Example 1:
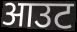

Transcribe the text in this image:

आउट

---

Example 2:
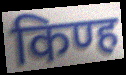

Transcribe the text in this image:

किण्ह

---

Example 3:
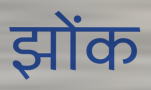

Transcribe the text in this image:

झोंक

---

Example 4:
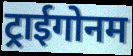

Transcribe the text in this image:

ट्राईगोनम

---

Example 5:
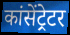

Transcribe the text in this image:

कांसेंट्रेटर